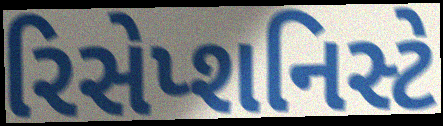
રિસેપ્શનિસ્ટે